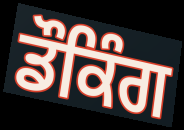
ਡੌਕਿੰਗ